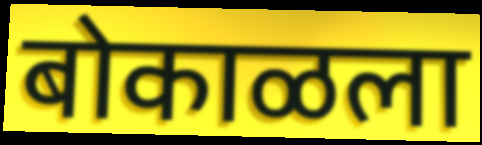
बोकाळला